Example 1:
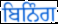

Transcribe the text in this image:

ਬਿਨਿੰਗ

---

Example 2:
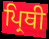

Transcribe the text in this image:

ਪ੍ਰਿਥੀ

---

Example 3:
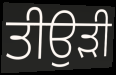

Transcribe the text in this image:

ਤੀਉੜੀ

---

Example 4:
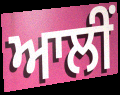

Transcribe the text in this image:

ਆਲੀਂ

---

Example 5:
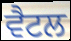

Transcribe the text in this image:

ਵੈਟਲ